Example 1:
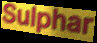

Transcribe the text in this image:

Sulphar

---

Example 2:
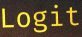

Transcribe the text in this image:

Logit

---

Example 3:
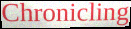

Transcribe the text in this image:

Chronicling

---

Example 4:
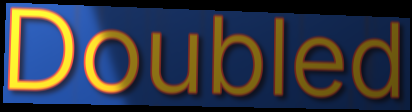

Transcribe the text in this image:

Doubled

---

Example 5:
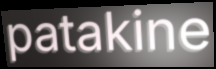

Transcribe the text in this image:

patakine